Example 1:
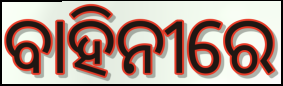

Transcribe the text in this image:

ବାହିନୀରେ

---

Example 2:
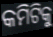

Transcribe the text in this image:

କମିଟିକୁ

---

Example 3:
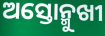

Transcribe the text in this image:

ଅସ୍ତୋନ୍ମୁଖୀ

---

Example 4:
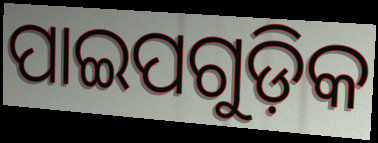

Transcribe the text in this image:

ପାଇପଗୁଡ଼ିକ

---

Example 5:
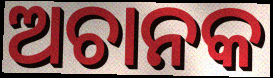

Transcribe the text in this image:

ଅଚାନକ